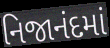
નિજાનંદમાં